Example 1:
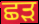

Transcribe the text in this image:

ਛੜ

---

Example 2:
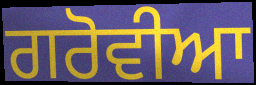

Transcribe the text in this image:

ਗਰੋਵੀਆ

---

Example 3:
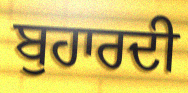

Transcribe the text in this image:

ਬੁਹਾਰਦੀ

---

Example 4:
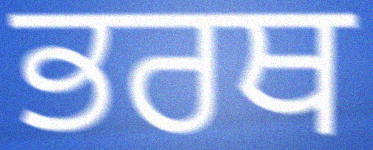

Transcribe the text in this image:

ਭਰਥ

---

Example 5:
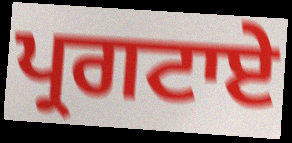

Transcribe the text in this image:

ਪ੍ਰਗਟਾਏ